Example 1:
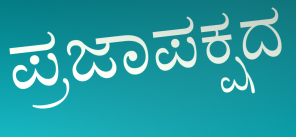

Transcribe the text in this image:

ಪ್ರಜಾಪಕ್ಷದ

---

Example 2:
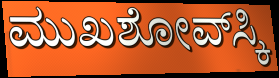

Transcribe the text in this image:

ಮುಖಶೋವ್‌ಸ್ಕಿ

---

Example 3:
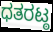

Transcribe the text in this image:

ಧತರಟ್ಠ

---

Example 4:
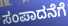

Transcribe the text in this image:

ಸಂಪಾದನೆಗೆ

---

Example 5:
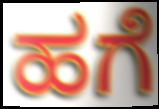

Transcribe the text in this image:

ಹಗೆ